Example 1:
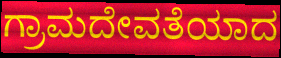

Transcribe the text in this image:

ಗ್ರಾಮದೇವತೆಯಾದ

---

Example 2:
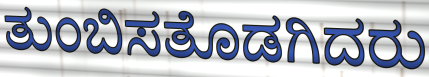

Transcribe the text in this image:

ತುಂಬಿಸತೊಡಗಿದರು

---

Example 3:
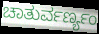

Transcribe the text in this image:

ಚಾತುರ್ವರ್ಣ್ಯಂ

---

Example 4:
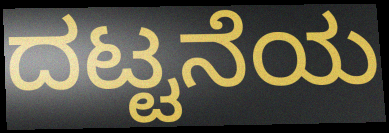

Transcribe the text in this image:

ದಟ್ಟನೆಯ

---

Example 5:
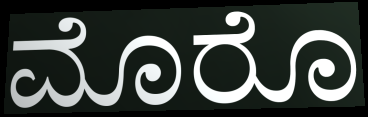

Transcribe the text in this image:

ಮೊರೊ